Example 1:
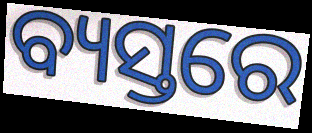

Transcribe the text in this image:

ବ୍ୟସ୍ତରେ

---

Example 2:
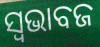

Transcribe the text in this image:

ସ୍ୱଭାବଜ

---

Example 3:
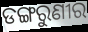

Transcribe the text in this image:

ଡଙ୍ଗରୁଣୀର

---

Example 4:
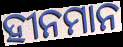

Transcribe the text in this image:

ହୀନମାନ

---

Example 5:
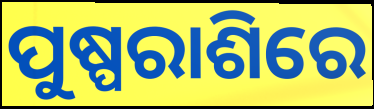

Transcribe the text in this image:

ପୁଷ୍ପରାଶିରେ